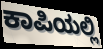
ಕಾಪಿಯಲ್ಲಿ